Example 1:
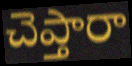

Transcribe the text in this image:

చెప్తారా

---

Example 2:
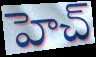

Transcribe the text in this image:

హెచ్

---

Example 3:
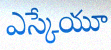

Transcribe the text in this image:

ఎస్కేయూ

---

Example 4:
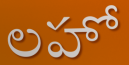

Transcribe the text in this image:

లహో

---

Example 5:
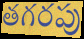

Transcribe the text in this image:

తగరపు